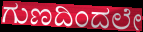
ಗುಣದಿಂದಲೇ